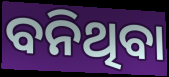
ବନିଥିବା